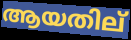
ആയതില്